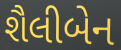
શૈલીબેન